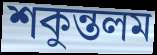
শকুন্তলম